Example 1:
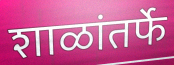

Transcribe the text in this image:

शाळांतर्फे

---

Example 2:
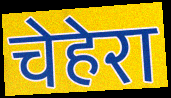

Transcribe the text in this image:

चेहेरा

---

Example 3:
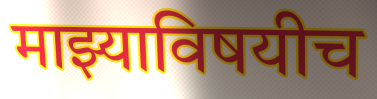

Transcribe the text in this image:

माझ्याविषयीच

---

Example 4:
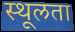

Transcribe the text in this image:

स्थूलता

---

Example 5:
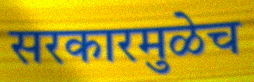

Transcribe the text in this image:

सरकारमुळेच